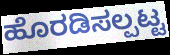
ಹೊರಡಿಸಲ್ಪಟ್ಟ